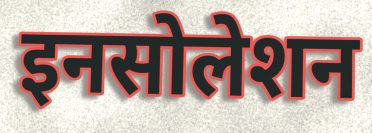
इनसोलेशन